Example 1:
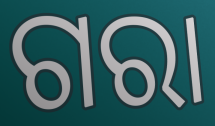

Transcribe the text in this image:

ଗରା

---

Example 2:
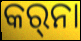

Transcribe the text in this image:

କର୍‍ନା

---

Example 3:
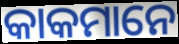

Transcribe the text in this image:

କାକମାନେ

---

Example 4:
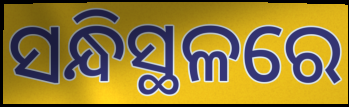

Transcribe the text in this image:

ସନ୍ଧିସ୍ଥଳରେ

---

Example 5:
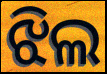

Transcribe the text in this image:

ଝିଲ